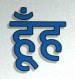
हूँह